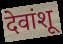
देवांशू